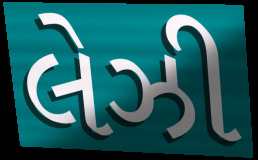
લેઝી